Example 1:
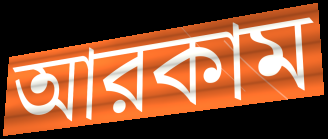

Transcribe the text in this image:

আরকাম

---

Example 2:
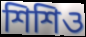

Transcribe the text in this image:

শিশিও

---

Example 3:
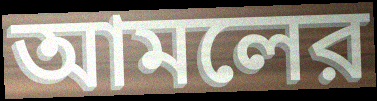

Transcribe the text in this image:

আমলের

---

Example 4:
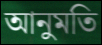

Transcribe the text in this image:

আনুমতি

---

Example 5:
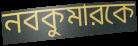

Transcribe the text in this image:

নবকুমারকে